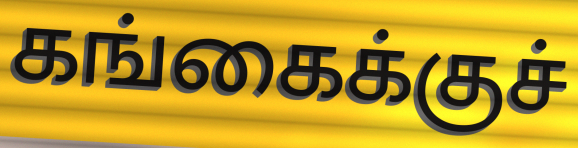
கங்கைக்குச்